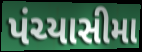
પંચ્યાસીમા